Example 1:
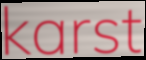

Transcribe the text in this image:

karst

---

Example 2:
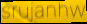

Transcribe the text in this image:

srujanhw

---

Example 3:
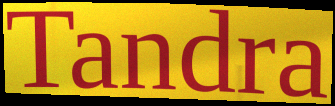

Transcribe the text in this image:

Tandra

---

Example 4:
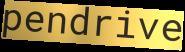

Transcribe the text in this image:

pendrive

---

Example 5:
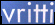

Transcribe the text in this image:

vritti